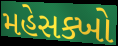
મહેસક્ખો